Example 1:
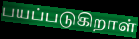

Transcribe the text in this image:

பயப்படுகிறாள்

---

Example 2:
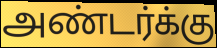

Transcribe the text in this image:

அண்டர்க்கு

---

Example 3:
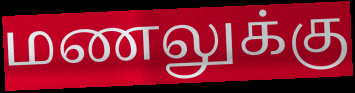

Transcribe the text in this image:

மணலுக்கு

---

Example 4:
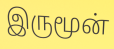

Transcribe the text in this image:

இருமூன்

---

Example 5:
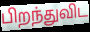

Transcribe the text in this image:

பிறந்துவிட